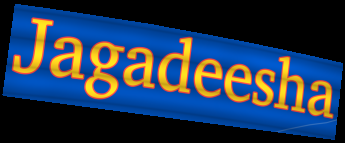
Jagadeesha